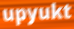
upyukt